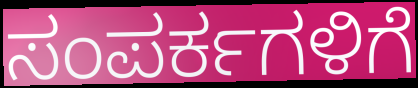
ಸಂಪರ್ಕಗಳಿಗೆ